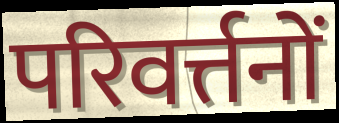
परिवर्त्तनों